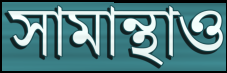
সামান্থাও